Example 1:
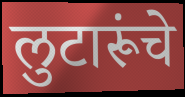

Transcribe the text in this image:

लुटारूंचे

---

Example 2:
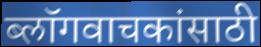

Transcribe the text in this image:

ब्लॉगवाचकांसाठी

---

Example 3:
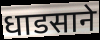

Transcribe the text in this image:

धाडसाने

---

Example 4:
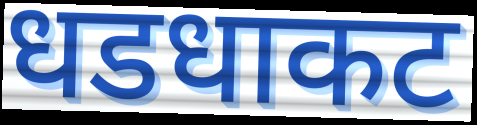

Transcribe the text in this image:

धडधाकट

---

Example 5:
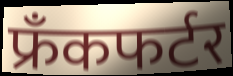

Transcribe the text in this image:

फ्रँकफर्टर